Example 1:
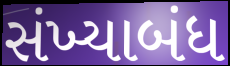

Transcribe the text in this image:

સંખ્યાબંધ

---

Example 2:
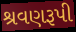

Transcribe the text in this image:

શ્રવણરૂપી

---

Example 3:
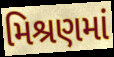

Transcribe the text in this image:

મિશ્રણમાં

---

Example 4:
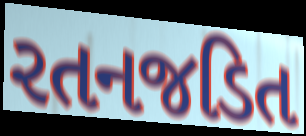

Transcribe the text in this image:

રતનજડિત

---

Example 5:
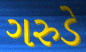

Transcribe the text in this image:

ગરુડે